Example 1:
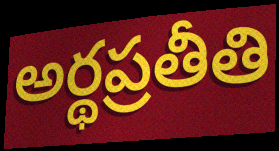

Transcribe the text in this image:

అర్థప్రతీతి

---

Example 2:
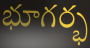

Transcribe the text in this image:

భూగర్భ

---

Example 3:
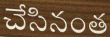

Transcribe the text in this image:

చేసినంత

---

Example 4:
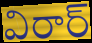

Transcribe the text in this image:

విరార్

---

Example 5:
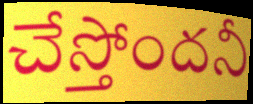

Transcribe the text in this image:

చేస్తోందనీ